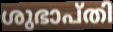
ശുഭാപ്തി